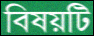
বিষয়টি